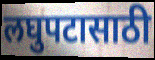
लघुपटासाठी